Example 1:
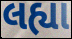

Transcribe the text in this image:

લહ્યા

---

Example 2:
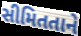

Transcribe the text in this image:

સીમિતતાને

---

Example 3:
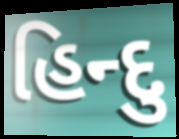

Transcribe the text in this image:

હિન્દુ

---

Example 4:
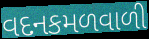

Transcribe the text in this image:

વદનકમળવાળી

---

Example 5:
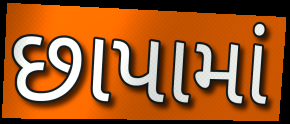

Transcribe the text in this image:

છાપામાં